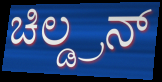
ಚಿಲ್ಡ್ರನ್